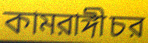
কামরাঙ্গীচর